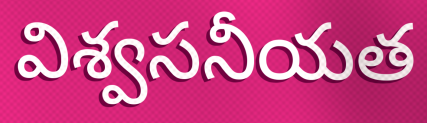
విశ్వసనీయత